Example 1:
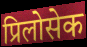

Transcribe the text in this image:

प्रिलोसेक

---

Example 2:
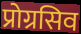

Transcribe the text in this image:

प्रोग्रसिव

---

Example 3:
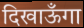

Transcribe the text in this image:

दिखाऊँगा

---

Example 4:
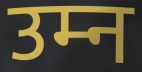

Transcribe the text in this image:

उम्न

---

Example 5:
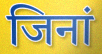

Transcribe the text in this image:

जिनां